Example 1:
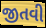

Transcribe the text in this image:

જીતવી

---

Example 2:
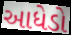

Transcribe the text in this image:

આધેડો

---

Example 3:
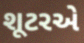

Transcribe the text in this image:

શૂટરએ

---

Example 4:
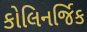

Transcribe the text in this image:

કોલિનર્જિક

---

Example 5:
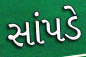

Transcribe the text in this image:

સાંપડે